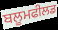
ਬਲੂਮਫੀਲਡ